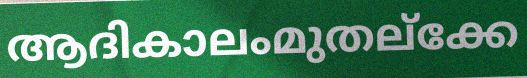
ആദികാലംമുതല്ക്കേ